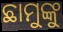
ଛାମୁଙ୍କୁ